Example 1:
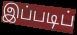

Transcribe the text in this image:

இப்படிப்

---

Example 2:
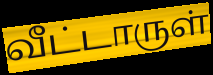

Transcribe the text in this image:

வீட்டாருள்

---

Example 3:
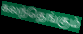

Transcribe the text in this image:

கலந்தெங்கும்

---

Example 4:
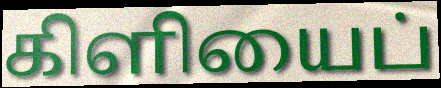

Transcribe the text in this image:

கிளியைப்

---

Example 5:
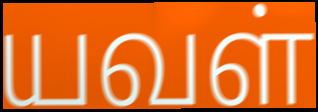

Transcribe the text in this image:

யவள்